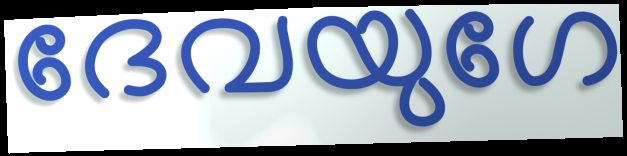
ദേവയുഗേ